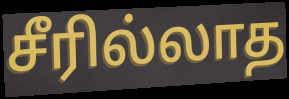
சீரில்லாத